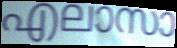
എലാസാ